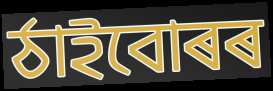
ঠাইবোৰৰ